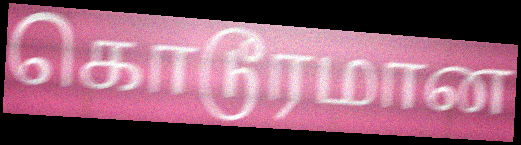
கொடூரமான